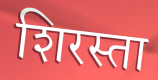
शिरस्ता